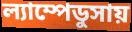
ল্যাম্পেডুসায়